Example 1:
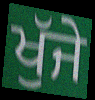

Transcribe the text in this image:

ਖੁੱਜੇ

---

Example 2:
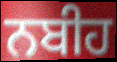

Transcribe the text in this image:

ਨਬੀਹ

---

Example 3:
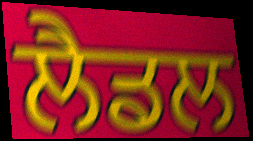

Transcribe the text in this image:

ਲੈਡਲ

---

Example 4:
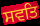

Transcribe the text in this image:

ਸਵਤਿ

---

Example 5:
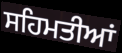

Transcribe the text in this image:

ਸਹਿਮਤੀਆਂ